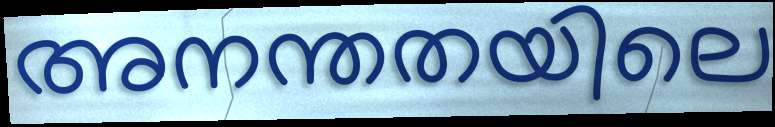
അനന്തതയിലെ